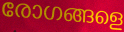
രോഗങ്ങളെ